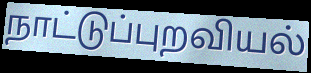
நாட்டுப்புறவியல்